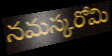
నమస్కరోమి